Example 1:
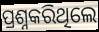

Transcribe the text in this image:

ପ୍ରଶ୍ନକରିଥିଲେ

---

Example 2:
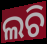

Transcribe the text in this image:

ଲଚି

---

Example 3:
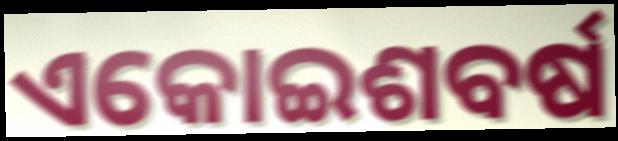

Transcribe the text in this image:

ଏକୋଇଶବର୍ଷ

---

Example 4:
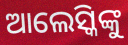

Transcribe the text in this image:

ଆଲେସ୍କିଙ୍କୁ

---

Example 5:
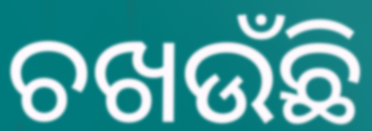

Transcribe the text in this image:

ଚଖଉଁଛି